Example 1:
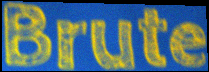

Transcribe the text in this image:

Brute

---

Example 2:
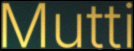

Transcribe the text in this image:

Mutti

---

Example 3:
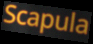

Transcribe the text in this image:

Scapula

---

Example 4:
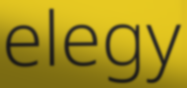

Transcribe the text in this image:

elegy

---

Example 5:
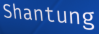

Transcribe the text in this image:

Shantung